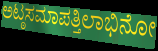
ಅಟ್ಠಸಮಾಪತ್ತಿಲಾಭಿನೋ